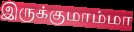
இருக்குமாம்மா